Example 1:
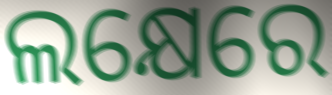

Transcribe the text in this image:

ଲକ୍ଷେରେ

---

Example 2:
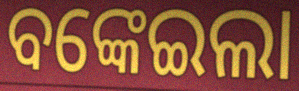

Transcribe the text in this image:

ବଙ୍କେଇଲା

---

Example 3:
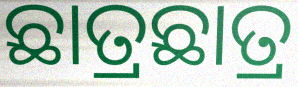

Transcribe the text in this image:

ଛାତ୍ରଛାତ୍ର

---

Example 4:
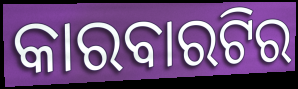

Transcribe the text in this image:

କାରବାରଟିର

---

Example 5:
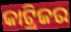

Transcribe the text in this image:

କାଟ୍ରିଜର